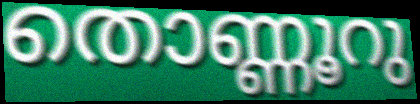
തൊണ്ണൂറു